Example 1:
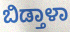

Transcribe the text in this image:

ಬಿಡ್ತಾಳಾ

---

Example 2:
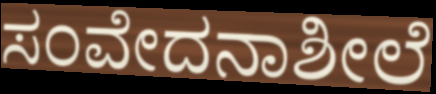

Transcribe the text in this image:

ಸಂವೇದನಾಶೀಲೆ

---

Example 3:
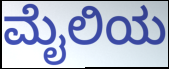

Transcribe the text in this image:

ಮೈಲಿಯ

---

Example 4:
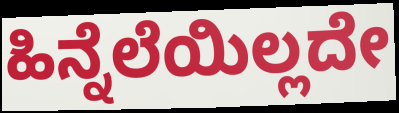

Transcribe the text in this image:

ಹಿನ್ನೆಲೆಯಿಲ್ಲದೇ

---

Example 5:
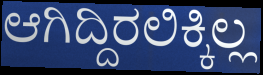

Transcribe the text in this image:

ಆಗಿದ್ದಿರಲಿಕ್ಕಿಲ್ಲ